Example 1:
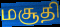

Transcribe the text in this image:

மசூதி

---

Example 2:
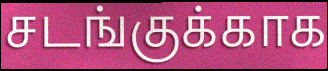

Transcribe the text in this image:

சடங்குக்காக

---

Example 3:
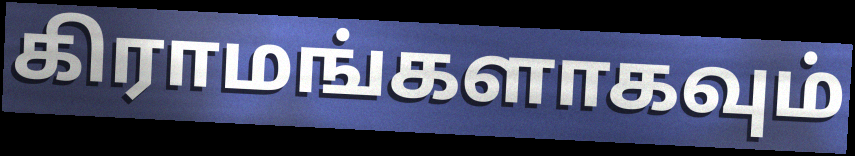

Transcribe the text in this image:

கிராமங்களாகவும்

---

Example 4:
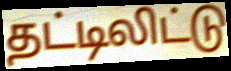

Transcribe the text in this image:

தட்டிலிட்டு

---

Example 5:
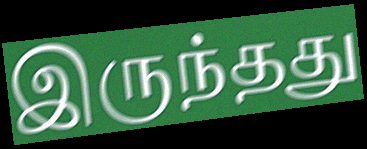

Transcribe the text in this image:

இருந்தது